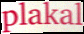
plakal